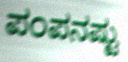
ಪಂಪನಷ್ಟು